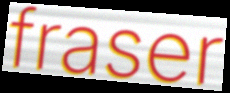
fraser